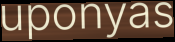
uponyas